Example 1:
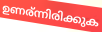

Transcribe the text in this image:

ഉണര്ന്നിരിക്കുക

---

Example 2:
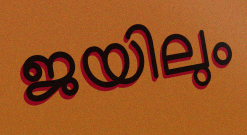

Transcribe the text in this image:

ജയിലും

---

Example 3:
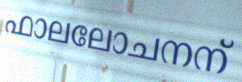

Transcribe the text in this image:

ഫാലലോചനന്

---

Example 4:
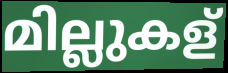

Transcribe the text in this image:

മില്ലുകള്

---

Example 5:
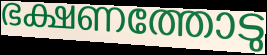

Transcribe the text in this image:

ഭക്ഷണത്തോടു